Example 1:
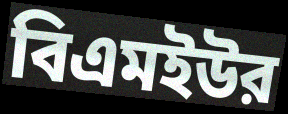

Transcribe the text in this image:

বিএমইউর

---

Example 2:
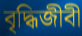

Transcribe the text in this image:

বৃদ্ধিজীবী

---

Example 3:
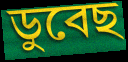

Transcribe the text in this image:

ডুবেছ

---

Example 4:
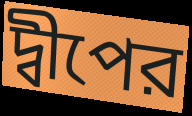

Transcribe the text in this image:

দ্বীপের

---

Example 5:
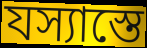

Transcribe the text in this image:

যস্যাস্তে